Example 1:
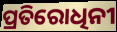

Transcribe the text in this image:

ପ୍ରତିରୋଧିନୀ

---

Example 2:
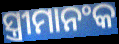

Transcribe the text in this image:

ସ୍ତ୍ରୀମାନଂକ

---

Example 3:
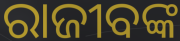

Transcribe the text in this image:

ରାଜୀବଙ୍କ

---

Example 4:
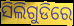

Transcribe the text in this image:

ସିଲିଗୁଡିରେ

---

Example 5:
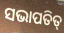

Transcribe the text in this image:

ସଭାପତିତ୍